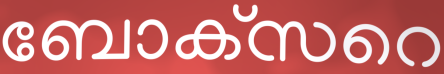
ബോക്‌സറെ